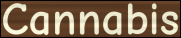
Cannabis